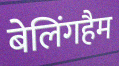
बेलिंगहैम